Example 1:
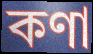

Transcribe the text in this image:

কণা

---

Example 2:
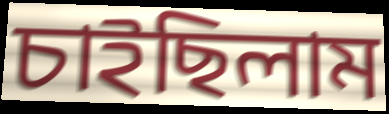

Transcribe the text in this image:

চাইছিলাম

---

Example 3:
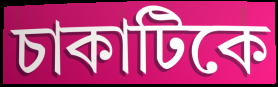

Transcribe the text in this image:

চাকাটিকে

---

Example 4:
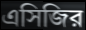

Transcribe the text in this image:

এসিজির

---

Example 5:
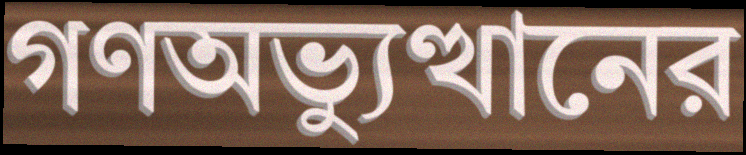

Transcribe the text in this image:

গণঅভ্যুত্থানের